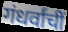
गंधर्वांचीं